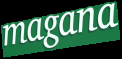
magana